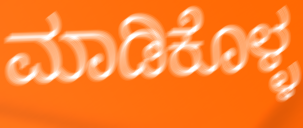
ಮಾಡಿಕೊಳ್ಳ